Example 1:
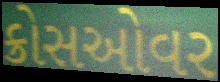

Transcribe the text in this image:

ક્રોસઓવર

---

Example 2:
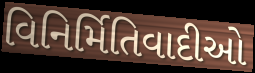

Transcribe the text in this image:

વિનિર્મિતિવાદીઓ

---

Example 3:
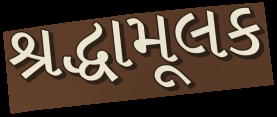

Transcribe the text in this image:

શ્રદ્ધામૂલક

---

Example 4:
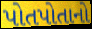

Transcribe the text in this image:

પોતપોતાનો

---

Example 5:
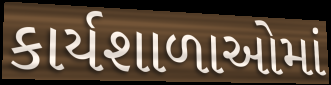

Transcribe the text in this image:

કાર્યશાળાઓમાં